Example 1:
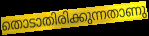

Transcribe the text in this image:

തൊടാതിരിക്കുന്നതാണു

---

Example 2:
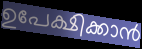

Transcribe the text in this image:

ഉപേക്ഷിക്കാൻ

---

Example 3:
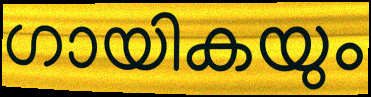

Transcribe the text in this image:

ഗായികയും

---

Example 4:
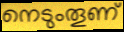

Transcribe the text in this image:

നെടുംതൂണ്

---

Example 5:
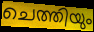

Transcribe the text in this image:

ചെത്തിയും